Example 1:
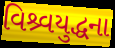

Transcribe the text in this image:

વિશ્ર્વયુદ્ધના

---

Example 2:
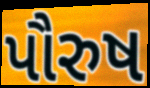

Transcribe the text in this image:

પૌરુષ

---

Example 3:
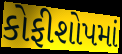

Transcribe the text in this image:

કોફીશોપમાં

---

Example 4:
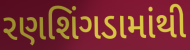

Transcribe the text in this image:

રણશિંગડામાંથી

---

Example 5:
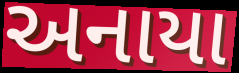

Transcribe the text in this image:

અનાયા